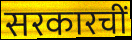
सरकारचीं